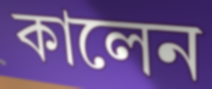
কালেন